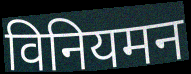
विनियमन